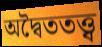
অদ্বৈততত্ত্ব